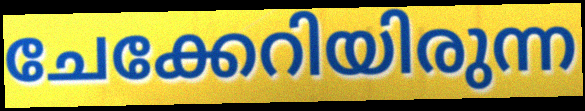
ചേക്കേറിയിരുന്ന